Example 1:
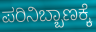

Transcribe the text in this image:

ಪರಿನಿಬ್ಬಾಣಕ್ಕೆ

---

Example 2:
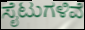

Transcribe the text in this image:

ಸೈಟುಗಳಿವೆ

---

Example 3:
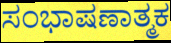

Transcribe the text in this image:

ಸಂಭಾಷಣಾತ್ಮಕ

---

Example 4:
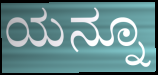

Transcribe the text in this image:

ಯನ್ನೂ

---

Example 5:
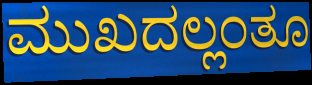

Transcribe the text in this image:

ಮುಖದಲ್ಲಂತೂ